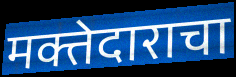
मक्तेदाराचा